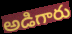
అడిగారు